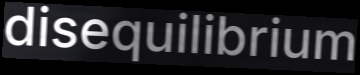
disequilibrium